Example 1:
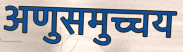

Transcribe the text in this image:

अणुसमुच्चय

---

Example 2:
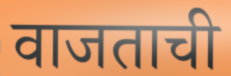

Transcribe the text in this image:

वाजताची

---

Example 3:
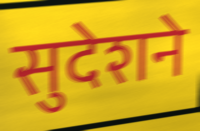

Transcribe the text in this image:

सुदेशने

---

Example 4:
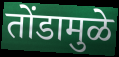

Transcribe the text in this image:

तोंडामुळे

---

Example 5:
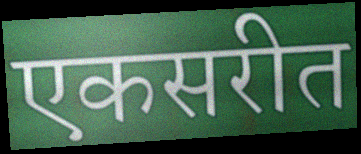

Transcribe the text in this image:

एकसरीत